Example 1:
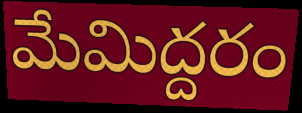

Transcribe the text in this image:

మేమిద్దరం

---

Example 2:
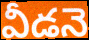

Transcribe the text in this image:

వీడనె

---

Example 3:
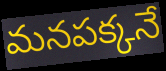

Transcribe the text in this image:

మనపక్కనే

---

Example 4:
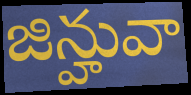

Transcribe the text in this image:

జిన్హువా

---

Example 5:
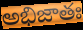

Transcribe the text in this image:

అభిజాతః